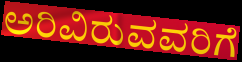
ಅರಿವಿರುವವರಿಗೆ